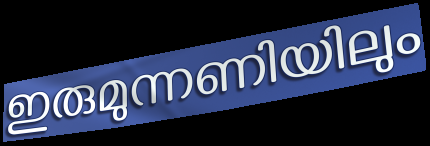
ഇരുമുന്നണിയിലും